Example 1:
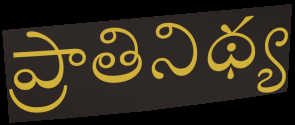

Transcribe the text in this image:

ప్రాతినిథ్య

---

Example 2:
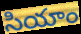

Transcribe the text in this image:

సియాం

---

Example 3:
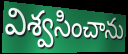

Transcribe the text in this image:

విశ్వసించాను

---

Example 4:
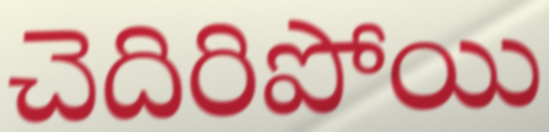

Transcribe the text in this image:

చెదిరిపోయి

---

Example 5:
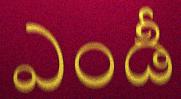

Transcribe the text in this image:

ఎండీ